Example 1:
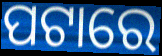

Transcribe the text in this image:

ପଟାରେ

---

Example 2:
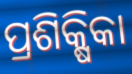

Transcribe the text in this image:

ପ୍ରଶିକ୍ଷିକା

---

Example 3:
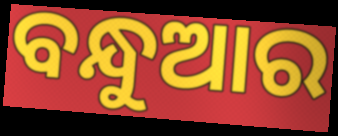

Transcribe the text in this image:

ବନ୍ଧୁଆର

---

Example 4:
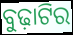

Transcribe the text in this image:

ବୁଢ଼ାଟିର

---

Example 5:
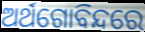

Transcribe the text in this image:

ଅର୍ଥଗୋବିନ୍ଦରେ